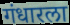
गंधारला